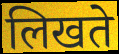
लिखते